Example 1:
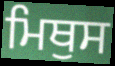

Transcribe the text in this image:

ਮਿਥੁਸ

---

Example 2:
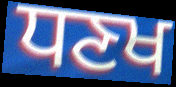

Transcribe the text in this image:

ਧਣਖ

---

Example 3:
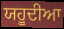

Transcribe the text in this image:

ਯਹੂਦੀਆ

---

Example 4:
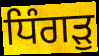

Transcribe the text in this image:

ਧਿੰਗੜੁ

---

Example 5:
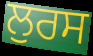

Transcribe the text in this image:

ਲੁਰਸ